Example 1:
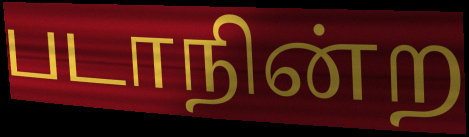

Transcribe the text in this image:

படாநின்ற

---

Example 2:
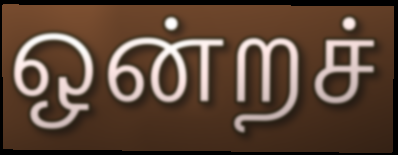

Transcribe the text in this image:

ஒன்றச்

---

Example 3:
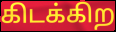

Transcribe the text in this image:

கிடக்கிற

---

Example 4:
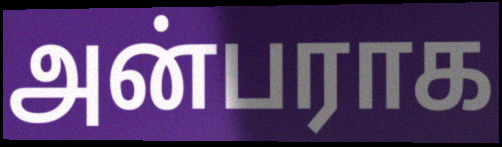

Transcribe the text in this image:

அன்பராக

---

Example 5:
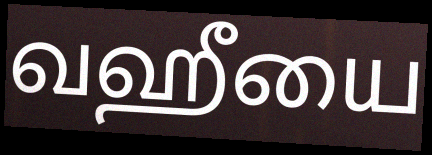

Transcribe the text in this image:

வஹீயை